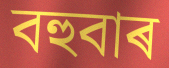
বহুবাৰ